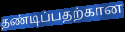
தண்டிப்பதற்கான